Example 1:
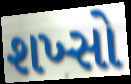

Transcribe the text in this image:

શખ્સો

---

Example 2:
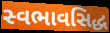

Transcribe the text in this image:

સ્વભાવસિદ્ધ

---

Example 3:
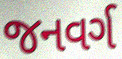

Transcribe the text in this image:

જનવર્ગ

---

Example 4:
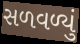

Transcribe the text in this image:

સળવળ્યું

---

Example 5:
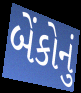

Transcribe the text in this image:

બેંકોનું